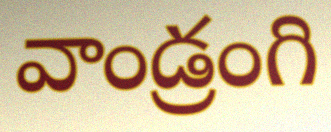
వాండ్రంగి